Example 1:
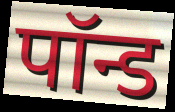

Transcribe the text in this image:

पॉन्ड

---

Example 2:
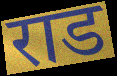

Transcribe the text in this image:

राड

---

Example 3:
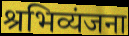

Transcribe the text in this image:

श्रभिव्यंजना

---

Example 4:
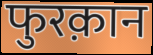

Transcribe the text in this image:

फुरक़ान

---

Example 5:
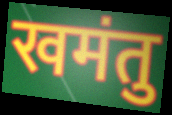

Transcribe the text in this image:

खमंतु